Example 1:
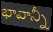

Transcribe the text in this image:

భావాన్నీ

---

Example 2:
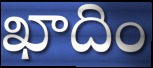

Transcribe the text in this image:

ఖాదిం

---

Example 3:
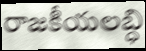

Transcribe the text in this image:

రాజకీయలబ్ధి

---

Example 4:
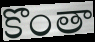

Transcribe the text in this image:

కొంతా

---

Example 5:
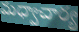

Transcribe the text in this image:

మధ్వాచార్య